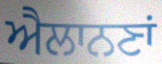
ਐਲਾਨਣਾਂ